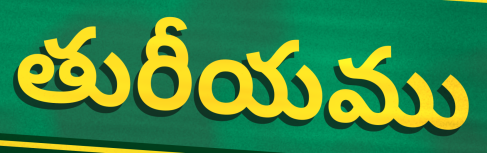
తురీయము